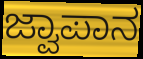
ಜ್ವಾಪಾನ